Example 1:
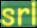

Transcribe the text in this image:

srl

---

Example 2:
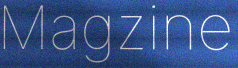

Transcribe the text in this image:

Magzine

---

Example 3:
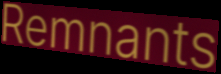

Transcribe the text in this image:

Remnants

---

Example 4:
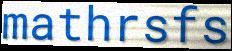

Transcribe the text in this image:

mathrsfs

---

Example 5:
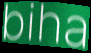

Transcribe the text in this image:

biha